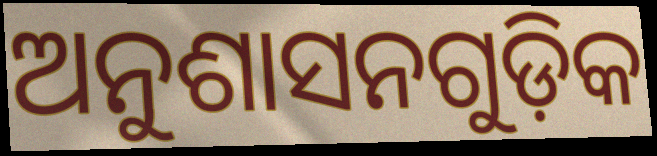
ଅନୁଶାସନଗୁଡ଼ିକ